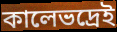
কালেভদ্রেই